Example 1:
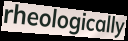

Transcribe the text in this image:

rheologically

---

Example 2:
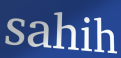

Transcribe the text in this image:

sahih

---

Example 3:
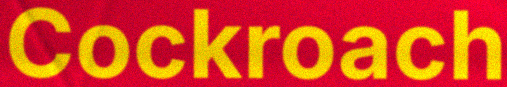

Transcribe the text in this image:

Cockroach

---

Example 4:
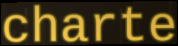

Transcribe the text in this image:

charte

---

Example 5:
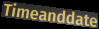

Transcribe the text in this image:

Timeanddate